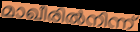
മാഖീരിൽനിന്ന്